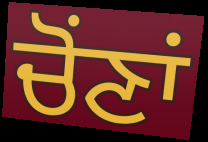
ਚੋਂਣਾਂ